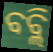
ବବ୍ଲି